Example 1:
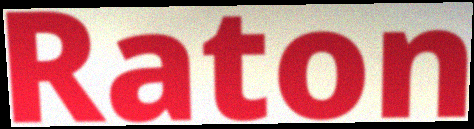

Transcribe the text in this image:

Raton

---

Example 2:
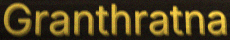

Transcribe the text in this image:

Granthratna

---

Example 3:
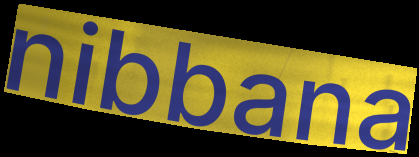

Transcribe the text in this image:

nibbana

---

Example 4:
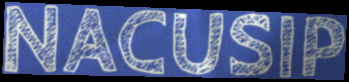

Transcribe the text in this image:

NACUSIP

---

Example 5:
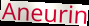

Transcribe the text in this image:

Aneurin